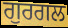
ਗੁਰਗਲ